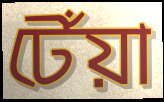
টেঁয়া